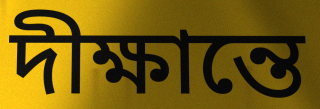
দীক্ষান্তে